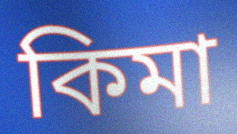
কিমা